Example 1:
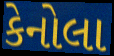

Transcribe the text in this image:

કેનોલા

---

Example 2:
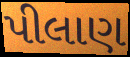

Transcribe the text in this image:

પીલાણ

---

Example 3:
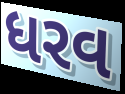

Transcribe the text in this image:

ધરવ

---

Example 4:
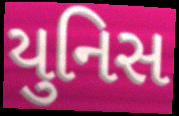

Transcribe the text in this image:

યુનિસ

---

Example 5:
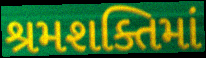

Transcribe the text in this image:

શ્રમશક્તિમાં